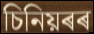
চিনিয়ৰৰ